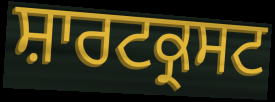
ਸ਼ਾਰਟਕ੍ਰਸਟ